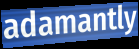
adamantly